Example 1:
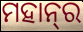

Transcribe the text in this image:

ମହାନ୍‌ର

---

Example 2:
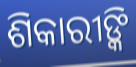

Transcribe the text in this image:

ଶିକାରୀଙ୍କି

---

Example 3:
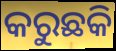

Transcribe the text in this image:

କରୁଛକି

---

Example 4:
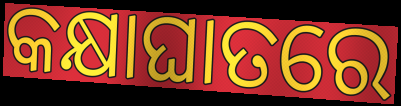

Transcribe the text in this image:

କକ୍ଷାଘାତରେ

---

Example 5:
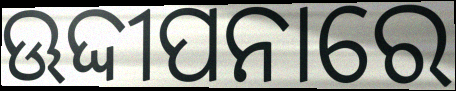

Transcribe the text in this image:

ଊଦ୍ଦୀପନାରେ